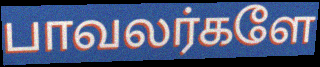
பாவலர்களே